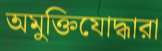
অমুক্তিযোদ্ধারা